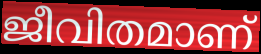
ജീവിതമാണ്